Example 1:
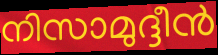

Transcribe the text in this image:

നിസാമുദ്ദീൻ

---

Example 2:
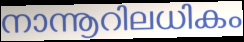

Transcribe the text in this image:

നാന്നൂറിലധികം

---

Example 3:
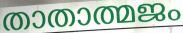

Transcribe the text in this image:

താതാത്മജം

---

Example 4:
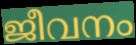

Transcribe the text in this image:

ജീവനം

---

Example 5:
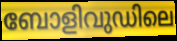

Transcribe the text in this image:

ബോളിവുഡിലെ